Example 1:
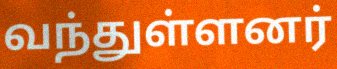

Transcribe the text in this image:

வந்துள்ளனர்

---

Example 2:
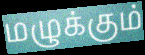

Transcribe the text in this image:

மழுக்கும்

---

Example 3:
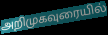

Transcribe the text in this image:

அறிமுகவுரையில்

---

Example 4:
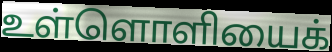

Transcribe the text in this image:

உள்ளொளியைக்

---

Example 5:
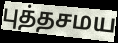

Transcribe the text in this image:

புத்தசமய